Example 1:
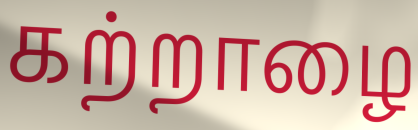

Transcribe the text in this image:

கற்றாழை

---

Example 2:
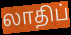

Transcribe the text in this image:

லாதிப்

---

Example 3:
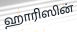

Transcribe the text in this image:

ஹாரிஸின்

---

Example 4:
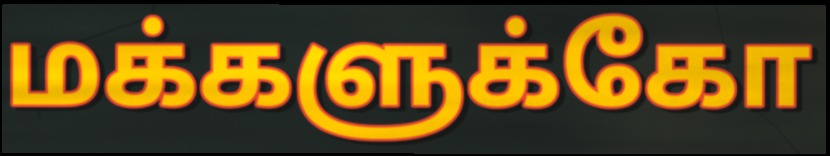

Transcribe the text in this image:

மக்களுக்கோ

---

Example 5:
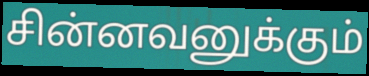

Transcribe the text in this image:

சின்னவனுக்கும்